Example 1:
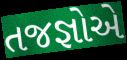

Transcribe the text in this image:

તજજ્ઞોએ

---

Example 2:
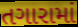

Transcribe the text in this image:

તગારામાં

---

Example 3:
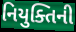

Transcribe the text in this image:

નિયુક્તિની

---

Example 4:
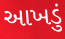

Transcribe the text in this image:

આખડું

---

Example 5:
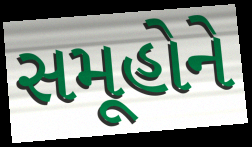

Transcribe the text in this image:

સમૂહોને